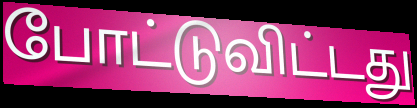
போட்டுவிட்டது